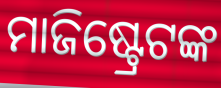
ମାଜିଷ୍ଟ୍ରେଟଙ୍କ